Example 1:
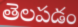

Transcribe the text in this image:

తెలపడం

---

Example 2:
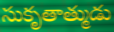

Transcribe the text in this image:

సుకృతాత్ముడు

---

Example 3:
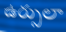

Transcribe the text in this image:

ఉర్సులా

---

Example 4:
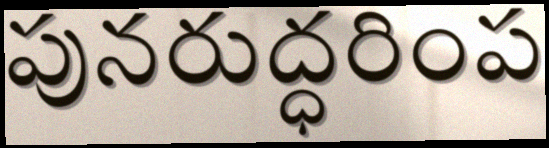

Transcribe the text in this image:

పునరుద్ధరింప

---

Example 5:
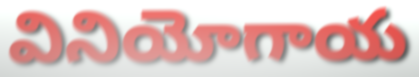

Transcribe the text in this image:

వినియోగాయ